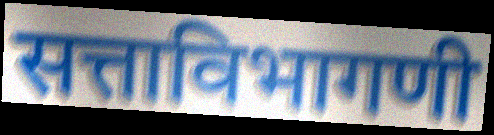
सत्ताविभागणी